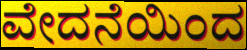
ವೇದನೆಯಿಂದ